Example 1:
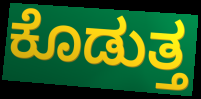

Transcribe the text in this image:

ಕೊಡುತ್ತ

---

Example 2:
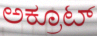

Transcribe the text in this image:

ಅಕ್ರೂಟ್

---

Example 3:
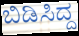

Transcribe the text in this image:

ಬಿಡಿಸಿದ್ದ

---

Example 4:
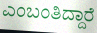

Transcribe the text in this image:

ಎಂಬಂತಿದ್ದಾರೆ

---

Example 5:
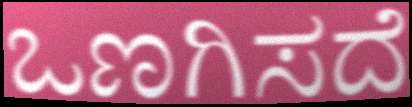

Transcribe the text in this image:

ಒಣಗಿಸದೆ